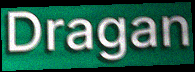
Dragan